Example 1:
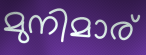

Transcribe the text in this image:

മുനിമാര്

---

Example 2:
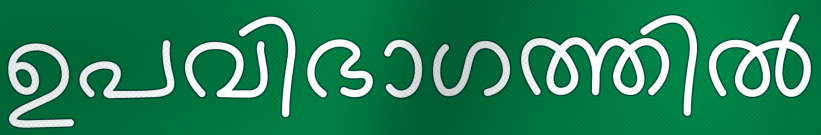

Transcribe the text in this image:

ഉപവിഭാഗത്തിൽ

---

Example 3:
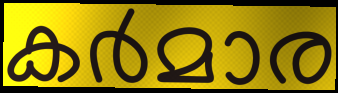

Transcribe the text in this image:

കർമാര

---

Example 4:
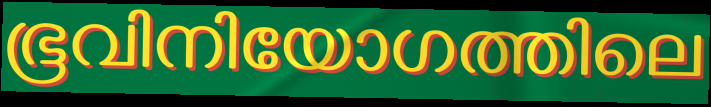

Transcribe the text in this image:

ഭൂവിനിയോഗത്തിലെ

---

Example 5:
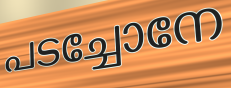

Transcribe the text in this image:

പടച്ചോനേ